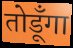
तोडूँगा